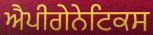
ਐਪੀਗੇਨੇਟਿਕਸ